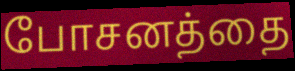
போசனத்தை